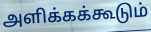
அளிக்கக்கூடும்